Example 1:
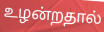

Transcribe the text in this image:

உழன்றதால்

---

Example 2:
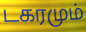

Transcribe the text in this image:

டகரமும்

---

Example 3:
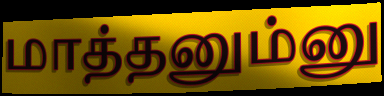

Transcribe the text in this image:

மாத்தனும்னு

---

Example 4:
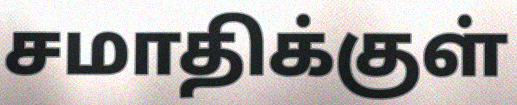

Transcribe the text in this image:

சமாதிக்குள்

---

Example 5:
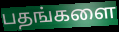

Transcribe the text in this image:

பதங்களை